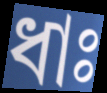
ধাঃ